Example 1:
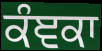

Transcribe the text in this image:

ਕੰਞਕਾ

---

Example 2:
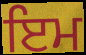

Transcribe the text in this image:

ਇਮ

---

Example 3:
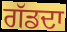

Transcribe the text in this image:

ਗੱਡਦਾ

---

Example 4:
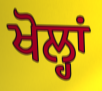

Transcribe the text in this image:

ਖੋਲ੍ਹਾਂ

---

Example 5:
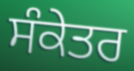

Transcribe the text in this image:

ਸੰਕੇਤਰ